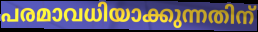
പരമാവധിയാക്കുന്നതിന്